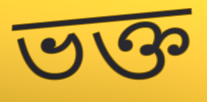
ভক্ত